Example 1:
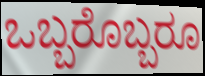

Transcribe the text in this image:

ಒಬ್ಬರೊಬ್ಬರೂ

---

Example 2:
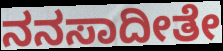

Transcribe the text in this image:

ನನಸಾದೀತೇ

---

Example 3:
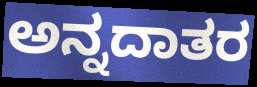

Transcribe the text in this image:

ಅನ್ನದಾತರ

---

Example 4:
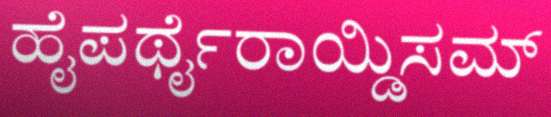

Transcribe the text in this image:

ಹೈಪರ್ಥೈರಾಯ್ಡಿಸಮ್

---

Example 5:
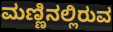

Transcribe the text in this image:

ಮಣ್ಣಿನಲ್ಲಿರುವ